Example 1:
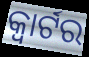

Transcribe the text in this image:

କ୍ଵାର୍ଟର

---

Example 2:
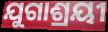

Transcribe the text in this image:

ଯୁଗାଶ୍ରୟୀ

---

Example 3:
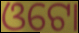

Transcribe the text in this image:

ଓଟୋ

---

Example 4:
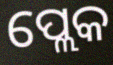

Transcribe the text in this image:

ପ୍ଲେକ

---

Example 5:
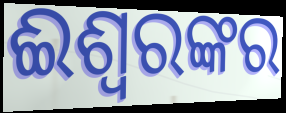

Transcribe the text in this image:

ଈଶ୍ୱରଙ୍କର